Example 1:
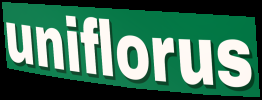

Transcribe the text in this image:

uniflorus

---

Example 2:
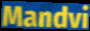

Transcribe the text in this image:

Mandvi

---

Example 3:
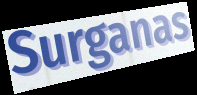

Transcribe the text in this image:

Surganas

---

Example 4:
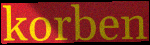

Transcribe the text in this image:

korben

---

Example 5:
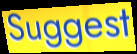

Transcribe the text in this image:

Suggest